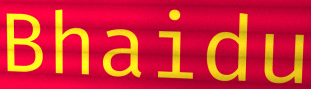
Bhaidu